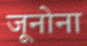
जूनोना